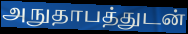
அநுதாபத்துடன்